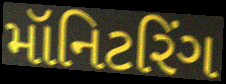
મૉનિટરિંગ